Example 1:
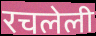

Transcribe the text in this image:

रचलेली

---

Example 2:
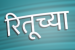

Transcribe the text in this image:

रितूच्या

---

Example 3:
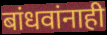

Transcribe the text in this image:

बांधवांनाही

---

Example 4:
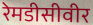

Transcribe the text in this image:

रेमडीसीवीर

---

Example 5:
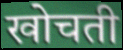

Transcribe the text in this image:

खोचती